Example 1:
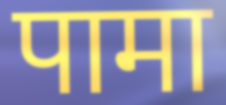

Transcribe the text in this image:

पामा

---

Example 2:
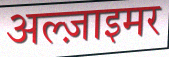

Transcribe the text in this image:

अल्ज़ाइमर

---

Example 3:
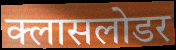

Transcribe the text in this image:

क्लासलोडर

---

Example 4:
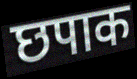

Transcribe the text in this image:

छपाक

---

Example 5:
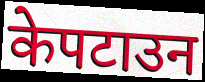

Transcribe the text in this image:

केपटाउन